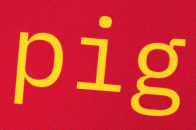
pig